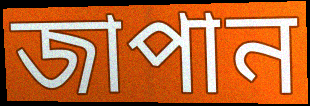
জাপান